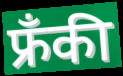
फ्रँकी